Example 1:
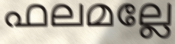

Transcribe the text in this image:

ഫലമല്ലേ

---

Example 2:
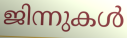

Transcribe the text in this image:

ജിന്നുകൾ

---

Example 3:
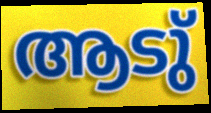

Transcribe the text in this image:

ആടു്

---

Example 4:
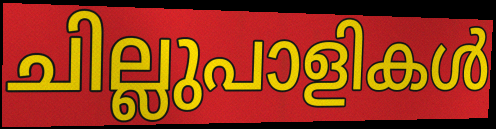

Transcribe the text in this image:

ചില്ലുപാളികൾ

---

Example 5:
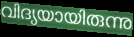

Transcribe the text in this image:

വിദ്യയായിരുന്നു